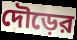
দৌড়ের